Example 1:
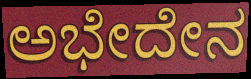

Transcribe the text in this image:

ಅಭೇದೇನ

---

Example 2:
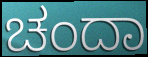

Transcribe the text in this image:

ಚಂದಾ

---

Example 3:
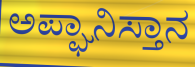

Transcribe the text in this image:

ಅಪ್ಘಾನಿಸ್ತಾನ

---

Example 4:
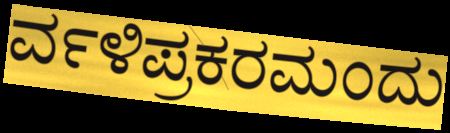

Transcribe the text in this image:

ರ್ವಳಿಪ್ರಕರಮಂದು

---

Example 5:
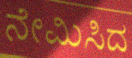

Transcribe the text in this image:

ನೇಮಿಸಿದ